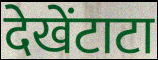
देखेंटाटा